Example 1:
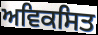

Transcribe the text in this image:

ਅਵਿਕਸਿਤ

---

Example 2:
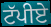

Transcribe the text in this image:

ਟੱਪੀਏ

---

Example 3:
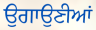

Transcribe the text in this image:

ਉਗਾਉਣੀਆਂ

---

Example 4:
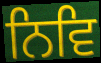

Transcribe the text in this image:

ਨਿਵਿ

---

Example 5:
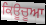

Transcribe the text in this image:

ਕਿਊਚੂਆ